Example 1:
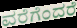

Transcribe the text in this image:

ವರೆಗೆಂದರೆ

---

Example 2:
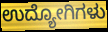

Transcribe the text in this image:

ಉದ್ಯೋಗಿಗಳು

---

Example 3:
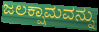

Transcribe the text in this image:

ಜಲಕ್ಷಾಮವನ್ನು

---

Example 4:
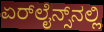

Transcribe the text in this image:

ಏರ್‌ಲೈನ್ಸ್‌ನಲ್ಲಿ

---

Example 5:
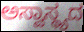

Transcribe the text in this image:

ಅಸ್ವಾಸ್ಥ್ಯದ